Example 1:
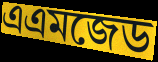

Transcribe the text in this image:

এএমজেড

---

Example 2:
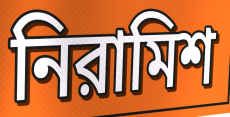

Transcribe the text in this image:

নিরামিশ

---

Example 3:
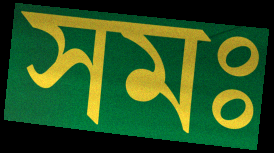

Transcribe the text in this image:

সমঃ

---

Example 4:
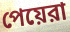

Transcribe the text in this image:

পেয়েরা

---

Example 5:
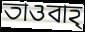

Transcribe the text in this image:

তাওবাহ্